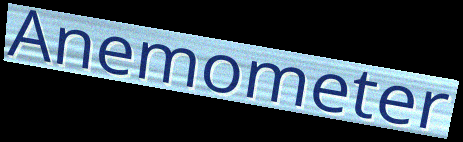
Anemometer